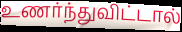
உணர்ந்துவிட்டால்